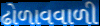
ઢોળાવવાળી